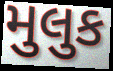
મુલુક